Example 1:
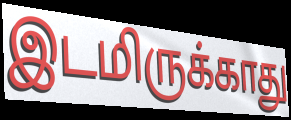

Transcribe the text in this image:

இடமிருக்காது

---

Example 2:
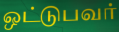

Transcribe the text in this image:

ஒட்டுபவர்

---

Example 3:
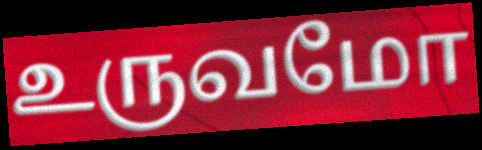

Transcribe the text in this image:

உருவமோ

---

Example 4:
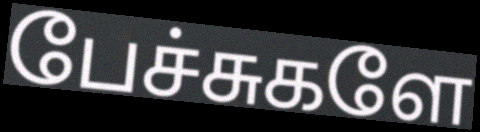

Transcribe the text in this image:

பேச்சுகளே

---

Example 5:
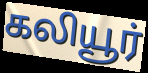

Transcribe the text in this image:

கலியூர்